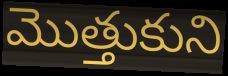
మొత్తుకుని